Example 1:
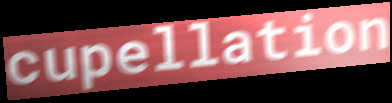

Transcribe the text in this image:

cupellation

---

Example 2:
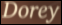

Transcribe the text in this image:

Dorey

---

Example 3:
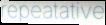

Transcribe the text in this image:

repeatative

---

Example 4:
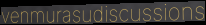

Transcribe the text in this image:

venmurasudiscussions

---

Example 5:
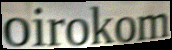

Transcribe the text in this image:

oirokom